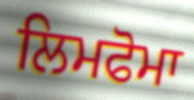
ਲਿਮਫੋਮਾ